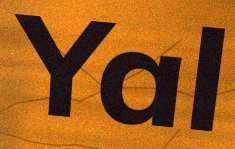
Yal